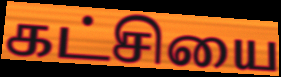
கட்சியை